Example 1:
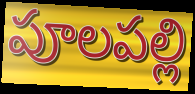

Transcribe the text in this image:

పూలపల్లి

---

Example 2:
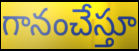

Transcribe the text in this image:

గానంచేస్తూ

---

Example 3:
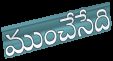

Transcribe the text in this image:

ముంచేసేది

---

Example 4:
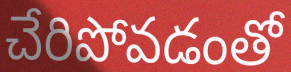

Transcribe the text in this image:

చేరిపోవడంతో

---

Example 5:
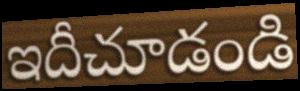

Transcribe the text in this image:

ఇదీచూడండి